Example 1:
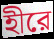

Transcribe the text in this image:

হীরে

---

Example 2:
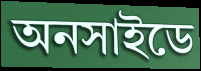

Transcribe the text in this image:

অনসাইডে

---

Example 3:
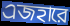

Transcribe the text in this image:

এজহারে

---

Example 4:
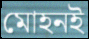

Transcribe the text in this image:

মোহনই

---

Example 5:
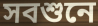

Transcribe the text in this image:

সবশুনে